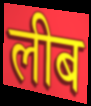
लीब